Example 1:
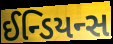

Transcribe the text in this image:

ઈન્ડિયન્સ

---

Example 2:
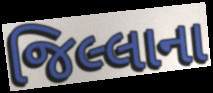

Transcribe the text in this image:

જિલ્લાના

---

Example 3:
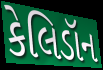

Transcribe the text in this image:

કેલિડૉન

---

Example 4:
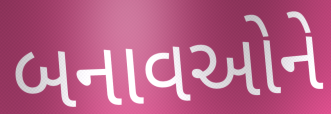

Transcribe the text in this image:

બનાવઓને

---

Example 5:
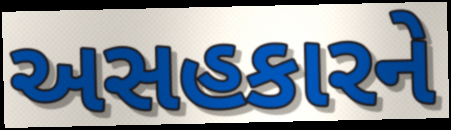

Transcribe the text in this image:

અસહકારને